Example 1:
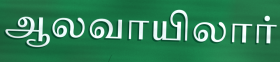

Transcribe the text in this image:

ஆலவாயிலார்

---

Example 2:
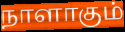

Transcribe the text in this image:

நாளாகும்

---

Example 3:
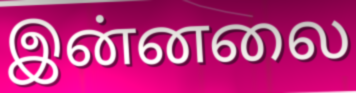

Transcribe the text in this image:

இன்னலை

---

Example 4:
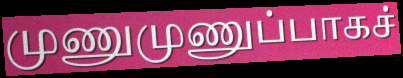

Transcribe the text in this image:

முணுமுணுப்பாகச்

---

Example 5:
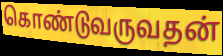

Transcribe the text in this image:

கொண்டுவருவதன்